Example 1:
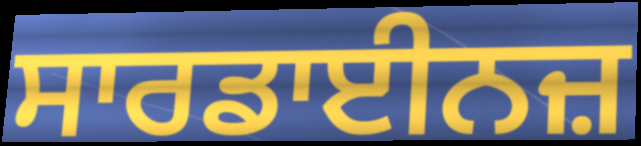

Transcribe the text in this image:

ਸਾਰਡਾਈਨਜ਼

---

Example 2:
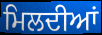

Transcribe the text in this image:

ਮਿਲਦੀਆਂ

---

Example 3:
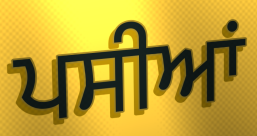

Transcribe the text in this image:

ਪਸੀਆਂ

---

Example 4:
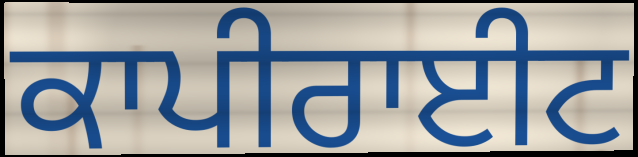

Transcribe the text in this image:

ਕਾਪੀਰਾਈਟ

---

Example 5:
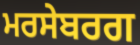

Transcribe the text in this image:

ਮਰਸੇਬਰਗ